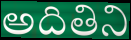
అదితిని